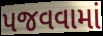
પજવવામાં